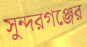
সুন্দরগঞ্জের